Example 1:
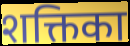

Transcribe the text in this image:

शक्तिका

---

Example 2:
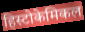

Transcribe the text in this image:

हिस्टोकेमिकल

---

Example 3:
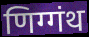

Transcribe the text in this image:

णिग्गंथ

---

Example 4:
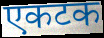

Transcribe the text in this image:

एकटक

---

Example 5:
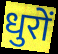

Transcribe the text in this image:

धुरों